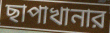
ছাপাখানার